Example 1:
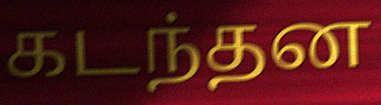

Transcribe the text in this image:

கடந்தன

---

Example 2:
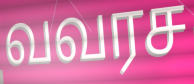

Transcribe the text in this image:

வவரச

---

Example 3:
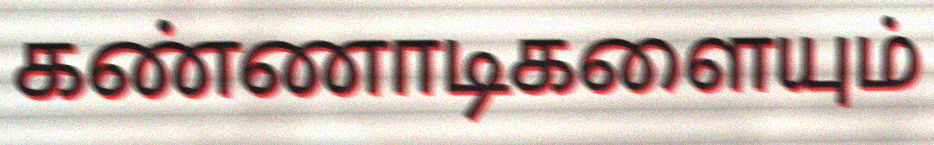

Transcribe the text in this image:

கண்ணாடிகளையும்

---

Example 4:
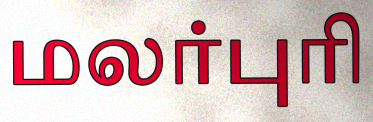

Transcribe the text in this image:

மலர்புரி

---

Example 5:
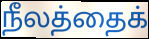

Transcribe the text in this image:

நீலத்தைக்